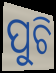
ପୁଚି